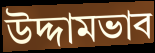
উদ্দামভাব